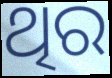
ଥିର